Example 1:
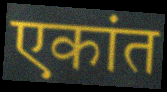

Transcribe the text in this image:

एकांत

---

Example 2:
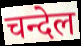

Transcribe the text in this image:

चन्देल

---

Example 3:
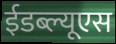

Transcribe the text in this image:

ईडब्ल्यूएस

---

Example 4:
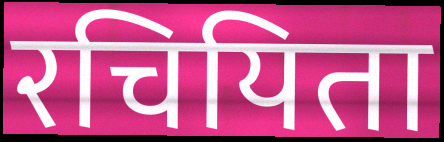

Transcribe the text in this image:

रचियिता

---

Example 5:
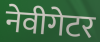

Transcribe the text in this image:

नेवीगेटर